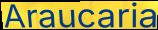
Araucaria